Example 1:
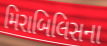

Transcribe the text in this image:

મિરાબિલિસના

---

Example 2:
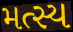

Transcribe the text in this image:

મત્સ્ય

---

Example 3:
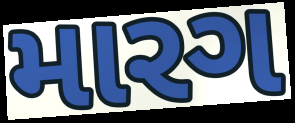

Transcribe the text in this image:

મારગ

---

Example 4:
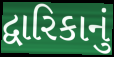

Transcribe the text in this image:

દ્વારિકાનું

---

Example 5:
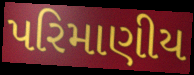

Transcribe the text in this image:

પરિમાણીય